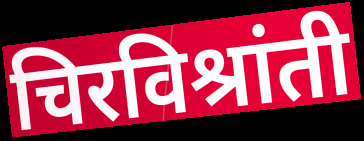
चिरविश्रांती